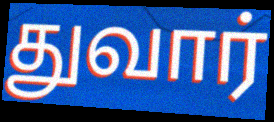
துவார்